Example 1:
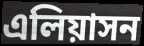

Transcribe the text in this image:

এলিয়াসন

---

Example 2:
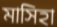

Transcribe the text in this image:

মাসিহা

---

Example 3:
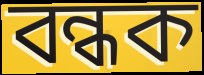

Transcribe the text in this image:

বন্ধক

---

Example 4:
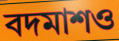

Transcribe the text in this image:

বদমাশও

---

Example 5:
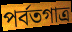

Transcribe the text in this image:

পর্বতগাত্র